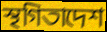
স্থগিতাদেশ